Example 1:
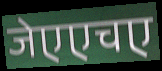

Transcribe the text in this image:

जेएएचए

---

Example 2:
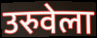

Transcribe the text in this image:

उरुवेला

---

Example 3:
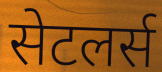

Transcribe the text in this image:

सेटलर्स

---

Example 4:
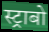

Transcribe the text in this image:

स्ट्राबो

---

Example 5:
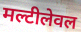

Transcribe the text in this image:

मल्टीलेवल